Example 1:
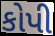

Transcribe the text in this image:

કોપી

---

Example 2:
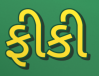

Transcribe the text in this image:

ફીકી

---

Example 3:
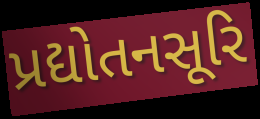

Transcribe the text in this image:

પ્રદ્યોતનસૂરિ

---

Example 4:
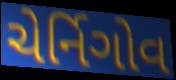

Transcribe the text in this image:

ચેર્નિગોવ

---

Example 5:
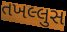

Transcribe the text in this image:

તખલ્લુસ